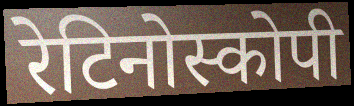
रेटिनोस्कोपी